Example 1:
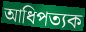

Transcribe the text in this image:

আধিপত্যক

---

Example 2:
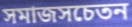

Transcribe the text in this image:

সমাজসচেতন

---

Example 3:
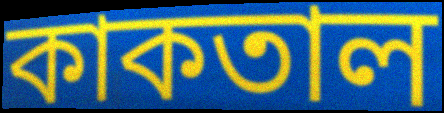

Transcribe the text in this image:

কাকতাল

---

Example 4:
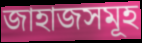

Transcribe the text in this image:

জাহাজসমূহ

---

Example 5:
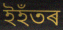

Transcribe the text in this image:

ইহঁতৰ